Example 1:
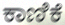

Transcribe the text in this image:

ಕಾಣಿಕೆ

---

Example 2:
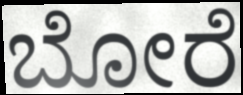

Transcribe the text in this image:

ಬೋರೆ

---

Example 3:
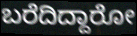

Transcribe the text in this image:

ಬರೆದಿದ್ದಾರೋ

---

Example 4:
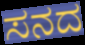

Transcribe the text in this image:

ಸನದ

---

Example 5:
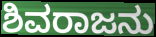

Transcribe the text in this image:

ಶಿವರಾಜನು